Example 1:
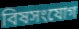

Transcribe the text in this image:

বিষসংযোগ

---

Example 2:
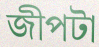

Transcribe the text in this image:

জীপটা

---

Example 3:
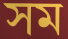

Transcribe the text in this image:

সম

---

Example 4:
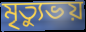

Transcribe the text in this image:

মৃত্যুভয়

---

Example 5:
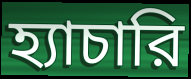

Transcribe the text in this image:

হ্যাচারি